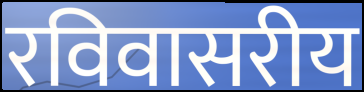
रविवासरीय